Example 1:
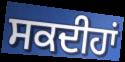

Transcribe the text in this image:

ਸਕਦੀਹਾਂ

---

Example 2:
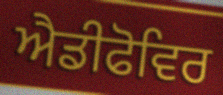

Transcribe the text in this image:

ਐਡੀਫੋਵਿਰ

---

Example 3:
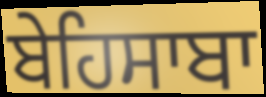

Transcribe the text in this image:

ਬੇਹਿਸਾਬਾ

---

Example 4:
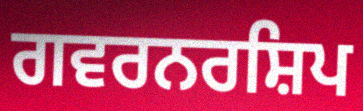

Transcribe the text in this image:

ਗਵਰਨਰਸ਼ਿਪ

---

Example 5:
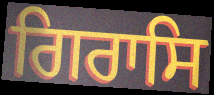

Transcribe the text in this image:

ਗਿਰਾਸਿ